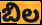
బిల